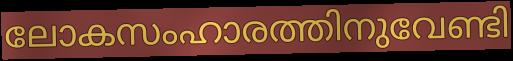
ലോകസംഹാരത്തിനുവേണ്ടി